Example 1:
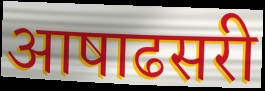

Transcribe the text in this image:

आषाढसरी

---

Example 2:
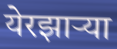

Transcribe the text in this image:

येरझार्‍या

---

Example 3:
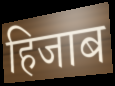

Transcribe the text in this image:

हिजाब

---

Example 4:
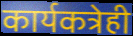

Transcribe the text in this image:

कार्यकत्रेही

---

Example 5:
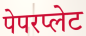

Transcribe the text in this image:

पेपरप्लेट